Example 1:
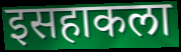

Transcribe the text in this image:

इसहाकला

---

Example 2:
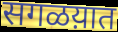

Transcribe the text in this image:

सगळय़ात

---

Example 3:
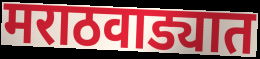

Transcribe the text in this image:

मराठवाड्यात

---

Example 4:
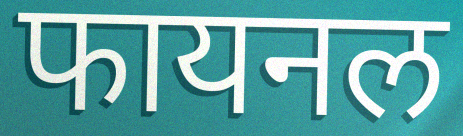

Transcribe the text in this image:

फायनल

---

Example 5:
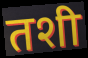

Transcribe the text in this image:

तशी